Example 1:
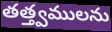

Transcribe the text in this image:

తత్త్వములను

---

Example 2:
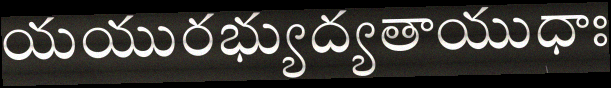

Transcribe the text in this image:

యయురభ్యుద్యతాయుధాః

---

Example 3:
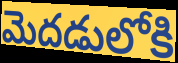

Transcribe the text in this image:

మెదడులోకి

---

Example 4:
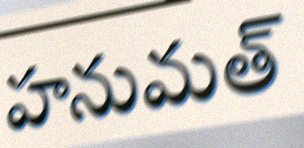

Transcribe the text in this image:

హనుమత్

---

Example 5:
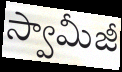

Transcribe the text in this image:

స్వామీజీ